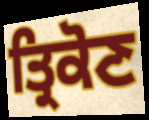
ਤ੍ਰਿਕੋਣ